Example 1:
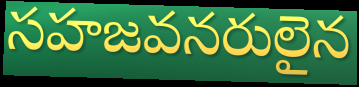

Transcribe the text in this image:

సహజవనరులైన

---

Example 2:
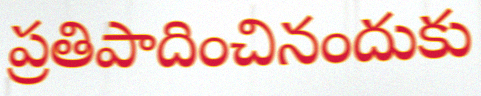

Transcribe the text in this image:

ప్రతిపాదించినందుకు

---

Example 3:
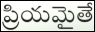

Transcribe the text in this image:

ప్రియమైతే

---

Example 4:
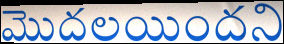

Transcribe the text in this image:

మొదలయిందని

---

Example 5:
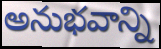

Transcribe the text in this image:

అనుభవాన్ని